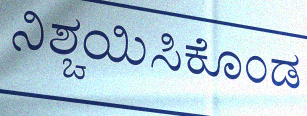
ನಿಶ್ಚಯಿಸಿಕೊಂಡ